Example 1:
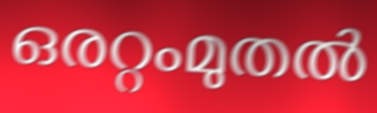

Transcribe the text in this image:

ഒരറ്റംമുതൽ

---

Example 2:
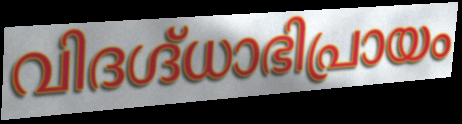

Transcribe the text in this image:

വിദഗ്ദ്ധാഭിപ്രായം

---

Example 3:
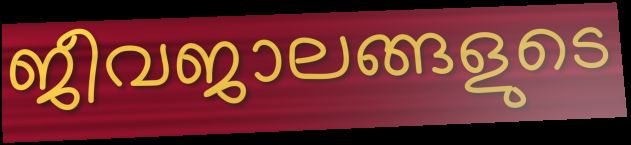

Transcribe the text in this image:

ജീവജാലങ്ങളുടെ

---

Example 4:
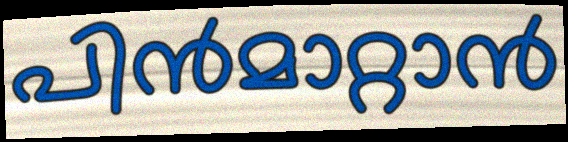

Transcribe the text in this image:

പിൻമാറ്റാൻ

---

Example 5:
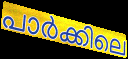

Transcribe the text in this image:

പാർക്കിലെ